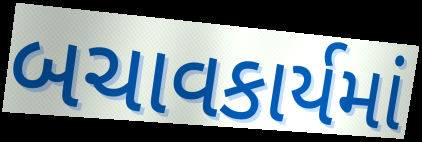
બચાવકાર્યમાં